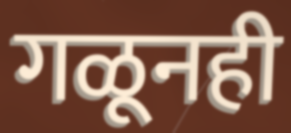
गळूनही